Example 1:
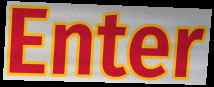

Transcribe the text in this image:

Enter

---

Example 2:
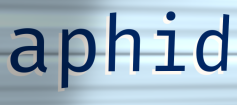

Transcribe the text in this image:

aphid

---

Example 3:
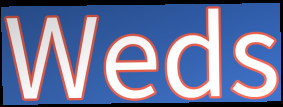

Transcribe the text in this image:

Weds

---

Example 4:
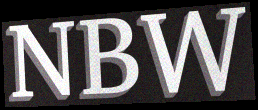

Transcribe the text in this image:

NBW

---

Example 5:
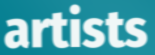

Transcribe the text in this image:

artists